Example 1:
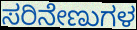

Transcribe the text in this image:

ಸರಿನೇಣುಗಳ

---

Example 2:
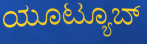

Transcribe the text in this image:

ಯೂಟ್ಯೂಬ್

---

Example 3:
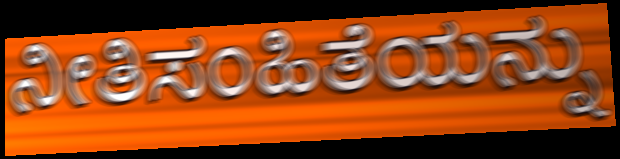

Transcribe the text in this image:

ನೀತಿಸಂಹಿತೆಯನ್ನು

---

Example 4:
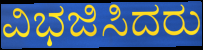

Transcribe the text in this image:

ವಿಭಜಿಸಿದರು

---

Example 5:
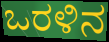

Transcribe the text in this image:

ಒರಳಿನ